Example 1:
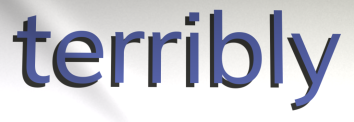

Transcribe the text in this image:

terribly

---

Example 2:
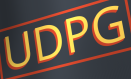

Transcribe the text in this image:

UDPG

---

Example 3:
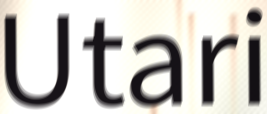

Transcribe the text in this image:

Utari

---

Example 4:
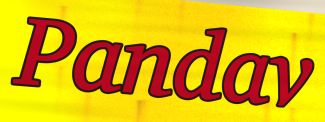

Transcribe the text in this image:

Pandav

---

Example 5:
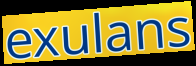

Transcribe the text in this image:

exulans